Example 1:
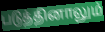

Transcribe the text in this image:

படுத்தினாலும்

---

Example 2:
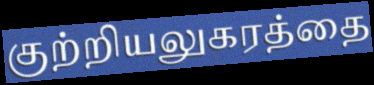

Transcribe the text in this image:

குற்றியலுகரத்தை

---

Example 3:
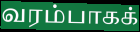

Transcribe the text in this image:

வரம்பாகக்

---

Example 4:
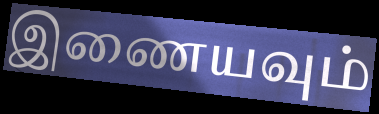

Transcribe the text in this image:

இணையவும்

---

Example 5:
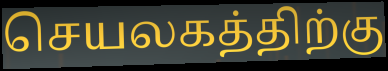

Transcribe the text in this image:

செயலகத்திற்கு